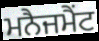
ਮਨੈਜਮੈਂਟ